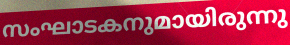
സംഘാടകനുമായിരുന്നു